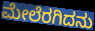
ಮೇಲೆರಗಿದನು